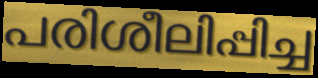
പരിശീലിപ്പിച്ച